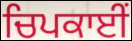
ਚਿਪਕਾਈਂ